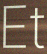
Et